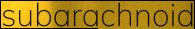
subarachnoid